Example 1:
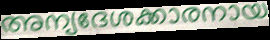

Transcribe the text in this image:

അന്യദേശക്കാരനായ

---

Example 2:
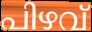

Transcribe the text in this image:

പിഴവ്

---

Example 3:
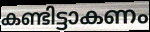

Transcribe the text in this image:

കണ്ടിട്ടാകണം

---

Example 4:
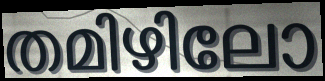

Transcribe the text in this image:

തമിഴിലോ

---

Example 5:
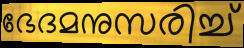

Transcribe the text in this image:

ഭേദമനുസരിച്ച്